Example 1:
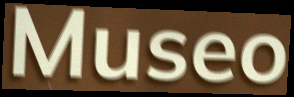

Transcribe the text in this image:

Museo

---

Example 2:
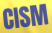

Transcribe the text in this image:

CISM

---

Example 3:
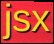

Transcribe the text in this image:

jsx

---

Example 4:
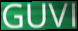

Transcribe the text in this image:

GUVI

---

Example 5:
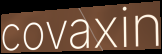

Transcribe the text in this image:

covaxin